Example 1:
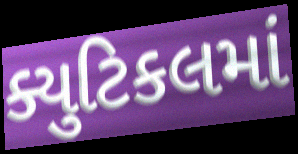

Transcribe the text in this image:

ક્યુટિકલમાં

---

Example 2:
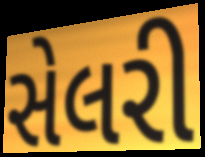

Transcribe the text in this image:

સેલરી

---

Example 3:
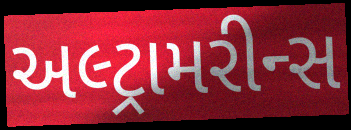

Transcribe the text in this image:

અલ્ટ્રામરીન્સ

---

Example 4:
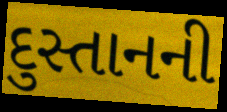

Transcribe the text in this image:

દુસ્તાનની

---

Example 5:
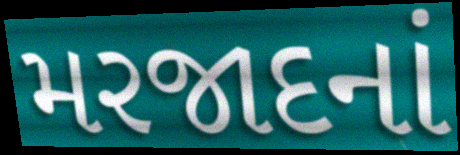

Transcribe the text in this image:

મરજાદનાં